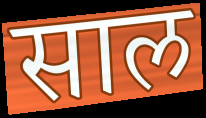
साल